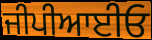
ਜੀਪੀਆਈਓ